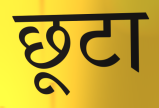
छूटा